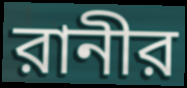
রানীর